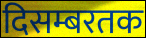
दिसम्बरतक